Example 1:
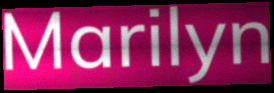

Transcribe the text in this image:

Marilyn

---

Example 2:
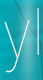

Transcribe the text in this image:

yl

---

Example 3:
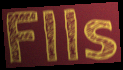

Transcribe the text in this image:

FIIs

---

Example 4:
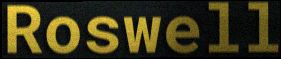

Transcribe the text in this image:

Roswell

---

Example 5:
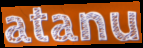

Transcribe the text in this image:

atanu